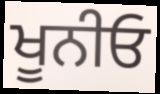
ਖੂਨੀਓ